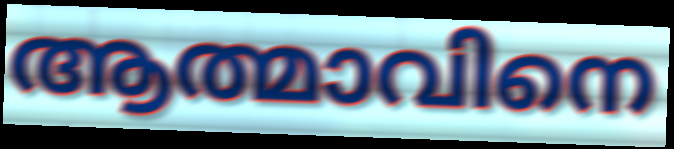
ആത്മാവിനെ